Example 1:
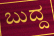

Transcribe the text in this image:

ಬುದ್ದ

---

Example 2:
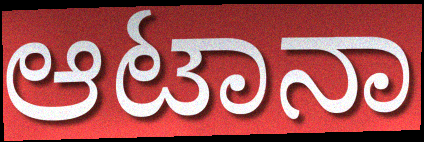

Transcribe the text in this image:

ಆಟಾನಾ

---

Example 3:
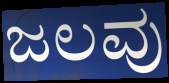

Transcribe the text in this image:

ಜಲವು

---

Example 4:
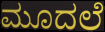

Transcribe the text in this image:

ಮೂದಲೆ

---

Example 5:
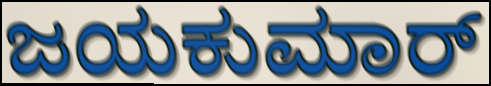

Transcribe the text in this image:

ಜಯಕುಮಾರ್